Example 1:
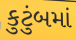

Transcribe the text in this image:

કુટુંબમાં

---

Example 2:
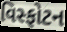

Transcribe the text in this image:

વિસ્ફોટન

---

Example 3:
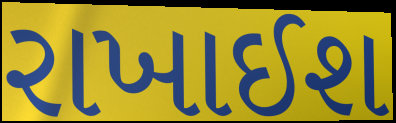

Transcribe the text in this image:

રાખાઈશ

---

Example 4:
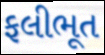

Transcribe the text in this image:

ફલીભૂત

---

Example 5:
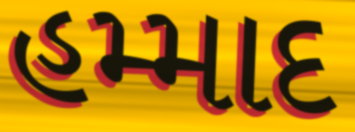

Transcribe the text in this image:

હમ્માદ